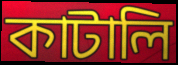
কাটালি